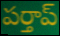
పర్తాప్